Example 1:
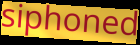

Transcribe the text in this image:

siphoned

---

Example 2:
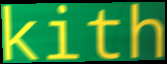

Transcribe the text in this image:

kith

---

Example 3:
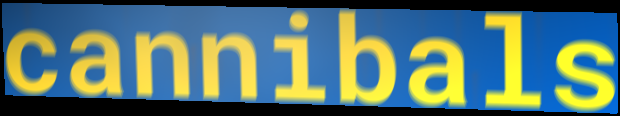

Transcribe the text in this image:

cannibals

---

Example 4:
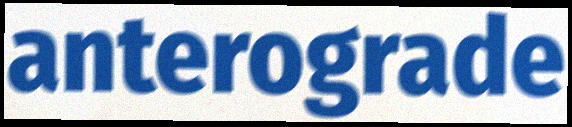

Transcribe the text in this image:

anterograde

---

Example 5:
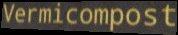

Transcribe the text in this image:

Vermicompost